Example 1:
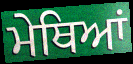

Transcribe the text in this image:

ਮੇਥਿਆਂ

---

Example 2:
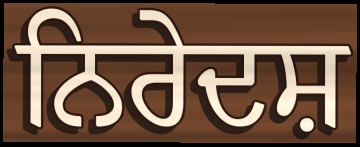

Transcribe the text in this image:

ਨਿਰੇਦਸ਼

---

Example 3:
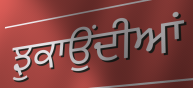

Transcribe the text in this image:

ਝੁਕਾਉਂਦੀਆਂ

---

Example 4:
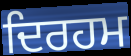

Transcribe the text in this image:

ਦਿਰਹਮ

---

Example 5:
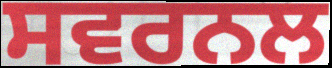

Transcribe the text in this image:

ਸਵਰਨਲ